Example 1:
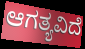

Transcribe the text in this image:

ಆಗತ್ಯವಿದೆ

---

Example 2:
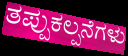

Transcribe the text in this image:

ತಪ್ಪುಕಲ್ಪನೆಗಳು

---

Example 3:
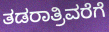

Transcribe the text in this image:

ತಡರಾತ್ರಿವರೆಗೆ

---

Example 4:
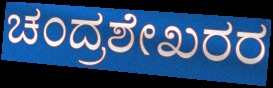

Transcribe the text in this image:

ಚಂದ್ರಶೇಖರರ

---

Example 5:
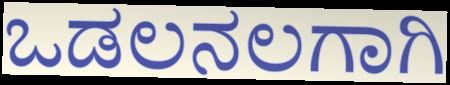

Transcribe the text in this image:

ಒಡಲನಲಗಾಗಿ